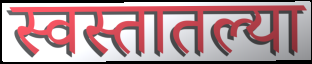
स्वस्तातल्या